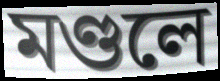
মণ্ডলে